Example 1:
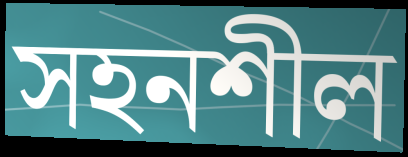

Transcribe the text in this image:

সহনশীল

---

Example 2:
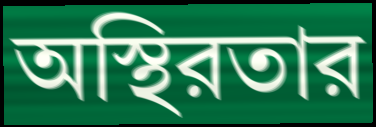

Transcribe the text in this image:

অস্থিরতার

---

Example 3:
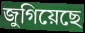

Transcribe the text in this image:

জুগিয়েছে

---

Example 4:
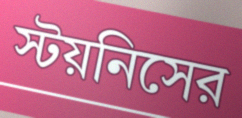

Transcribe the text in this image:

স্টয়নিসের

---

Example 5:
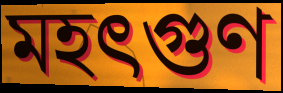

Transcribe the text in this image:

মহৎগুণ